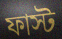
ফাস্ট